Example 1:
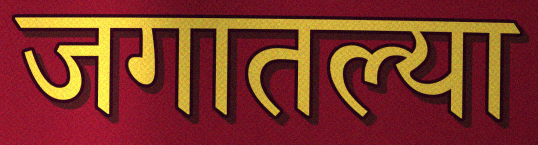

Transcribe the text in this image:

जगातल्या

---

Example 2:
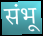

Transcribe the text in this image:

संभू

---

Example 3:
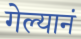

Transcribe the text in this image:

गेल्यानं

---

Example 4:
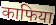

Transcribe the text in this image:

काफिया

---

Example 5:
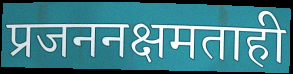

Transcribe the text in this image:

प्रजननक्षमताही